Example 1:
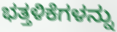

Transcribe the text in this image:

ಭತ್ತಳಿಕೆಗಳನ್ನು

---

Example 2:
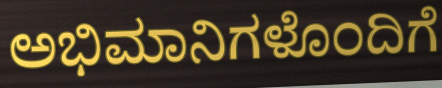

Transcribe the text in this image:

ಅಭಿಮಾನಿಗಳೊಂದಿಗೆ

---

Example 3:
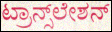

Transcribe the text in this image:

ಟ್ರಾನ್ಸ್‌ಲೇಶನ್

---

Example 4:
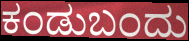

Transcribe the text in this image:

ಕಂಡುಬಂದು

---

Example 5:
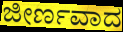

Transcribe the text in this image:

ಜೀರ್ಣವಾದ